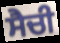
ਸੈਚੀ